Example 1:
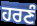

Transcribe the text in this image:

ਹਰਣੰ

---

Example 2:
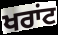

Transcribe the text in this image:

ਖਰਾਂਟ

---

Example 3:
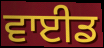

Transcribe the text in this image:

ਵਾਈਡ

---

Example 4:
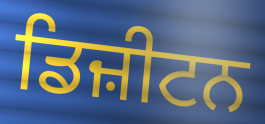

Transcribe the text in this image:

ਡਿਜ਼ੀਟਨ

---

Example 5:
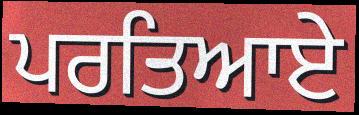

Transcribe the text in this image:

ਪਰਤਿਆਏ